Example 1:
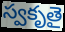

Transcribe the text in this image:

స్వకృతై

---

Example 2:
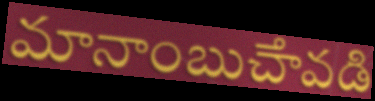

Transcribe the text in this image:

మానాంబుౘావడి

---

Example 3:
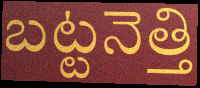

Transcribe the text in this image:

బట్టనెత్తి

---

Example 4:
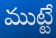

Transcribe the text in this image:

ముట్టే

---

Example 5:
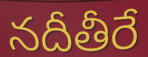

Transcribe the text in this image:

నదీతీరే